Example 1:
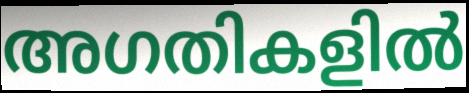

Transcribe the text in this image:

അഗതികളിൽ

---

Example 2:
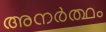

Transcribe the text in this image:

അനർത്ഥം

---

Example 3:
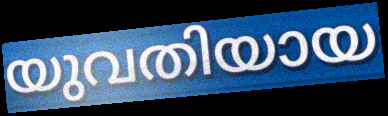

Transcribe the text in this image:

യുവതിയായ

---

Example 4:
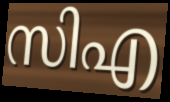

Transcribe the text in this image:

സിഎ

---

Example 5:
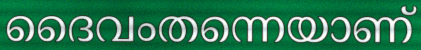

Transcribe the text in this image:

ദൈവംതന്നെയാണ്